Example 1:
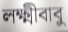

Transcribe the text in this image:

লক্ষ্মীবাবু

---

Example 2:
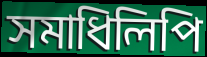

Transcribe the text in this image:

সমাধিলিপি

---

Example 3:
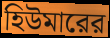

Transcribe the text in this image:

হিউমারের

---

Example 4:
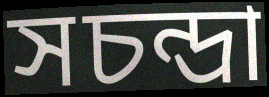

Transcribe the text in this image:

সচন্দ্রা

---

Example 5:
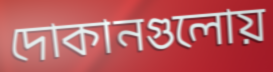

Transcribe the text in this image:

দোকানগুলোয়